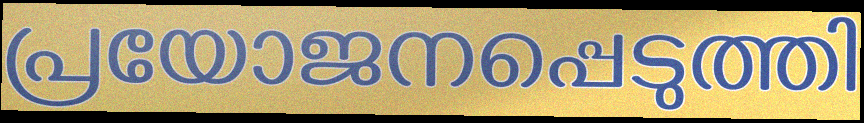
പ്രയോജനപ്പെടുത്തി